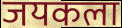
जयकला